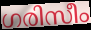
ഗരിസീം